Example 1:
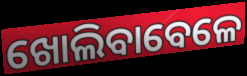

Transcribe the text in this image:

ଖୋଲିବାବେଳେ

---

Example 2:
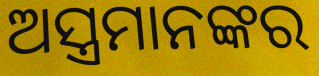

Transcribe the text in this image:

ଅସ୍ତ୍ରମାନଙ୍କର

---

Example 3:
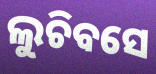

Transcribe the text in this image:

ଲୁଚିବସେ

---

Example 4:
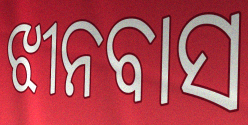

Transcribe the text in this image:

ଝୀନବାସ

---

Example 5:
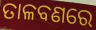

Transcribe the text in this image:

ତାଳବଣରେ